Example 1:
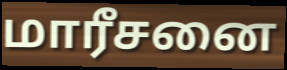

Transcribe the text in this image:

மாரீசனை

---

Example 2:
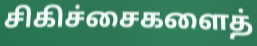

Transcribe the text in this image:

சிகிச்சைகளைத்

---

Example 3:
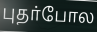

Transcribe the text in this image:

புதர்போல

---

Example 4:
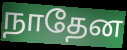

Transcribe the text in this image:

நாதேன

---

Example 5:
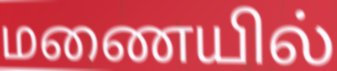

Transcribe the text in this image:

மணையில்